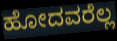
ಹೋದವರೆಲ್ಲ